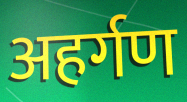
अहर्गण